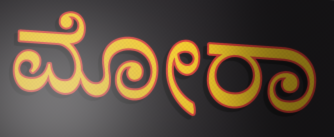
ಮೋರಾ